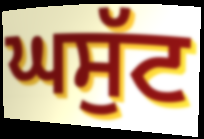
ਘਸੁੱਟ